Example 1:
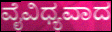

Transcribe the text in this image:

ವೈವಿಧ್ಯವಾದ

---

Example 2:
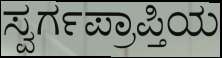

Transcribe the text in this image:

ಸ್ವರ್ಗಪ್ರಾಪ್ತಿಯ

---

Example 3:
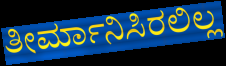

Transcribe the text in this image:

ತೀರ್ಮಾನಿಸಿರಲಿಲ್ಲ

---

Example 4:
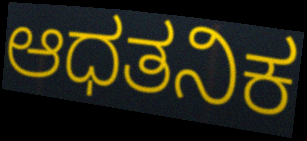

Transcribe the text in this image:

ಆಧತನಿಕ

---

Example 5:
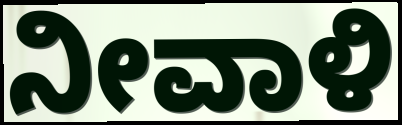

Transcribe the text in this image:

ನೀವಾಳಿ